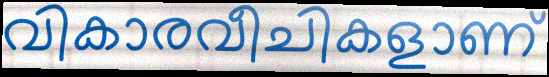
വികാരവീചികളാണ്